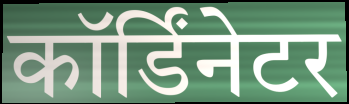
कॉर्डिंनेटर